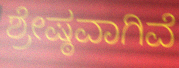
ಶ್ರೇಷ್ಠವಾಗಿವೆ